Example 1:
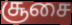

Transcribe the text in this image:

சூசை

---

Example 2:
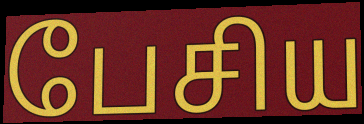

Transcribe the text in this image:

பேசிய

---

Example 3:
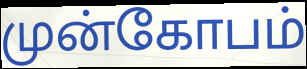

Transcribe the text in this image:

முன்கோபம்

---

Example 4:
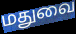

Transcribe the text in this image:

மதுவை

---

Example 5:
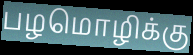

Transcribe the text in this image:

பழமொழிக்கு